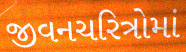
જીવનચરિત્રોમાં